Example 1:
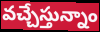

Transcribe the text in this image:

వచ్చేస్తున్నాం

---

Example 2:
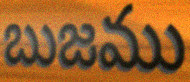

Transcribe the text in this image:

బుజము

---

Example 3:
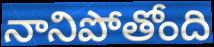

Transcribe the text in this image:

నానిపోతోంది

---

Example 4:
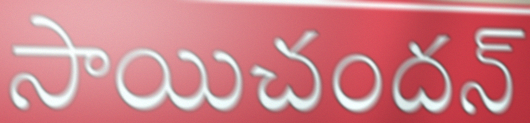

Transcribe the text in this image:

సాయిచందన్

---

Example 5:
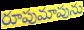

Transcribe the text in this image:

రూపుమాపును